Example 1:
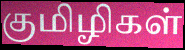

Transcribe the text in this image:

குமிழிகள்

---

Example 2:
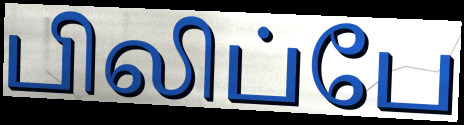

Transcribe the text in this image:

பிலிப்பே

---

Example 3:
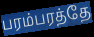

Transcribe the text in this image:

பரம்பரத்தே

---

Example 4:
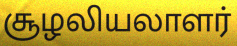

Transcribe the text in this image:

சூழலியலாளர்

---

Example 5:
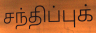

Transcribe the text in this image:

சந்திப்புக்